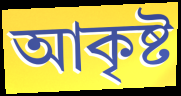
আকৃষ্ট